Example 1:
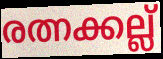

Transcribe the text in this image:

രത്നക്കല്ല്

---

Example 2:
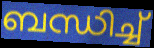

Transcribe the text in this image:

ബന്ധിച്ച്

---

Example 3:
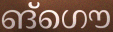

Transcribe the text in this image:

ങ്ഗൌ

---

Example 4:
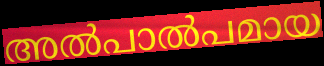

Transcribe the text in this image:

അൽപാൽപമായ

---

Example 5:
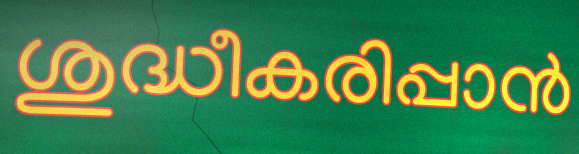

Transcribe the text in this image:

ശുദ്ധീകരിപ്പാൻ